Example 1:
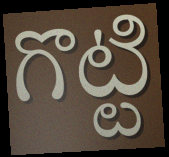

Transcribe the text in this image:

గొట్టి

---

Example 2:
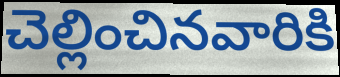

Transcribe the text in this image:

చెల్లించినవారికి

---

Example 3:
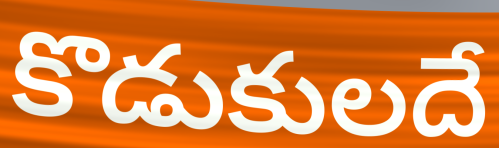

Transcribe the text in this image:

కొడుకులదే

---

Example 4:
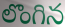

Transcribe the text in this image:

లొంగిన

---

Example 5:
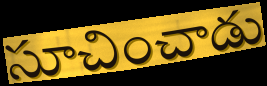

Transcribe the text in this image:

సూచించాడు